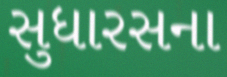
સુધારસના